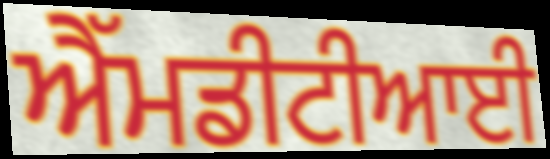
ਐੱਮਡੀਟੀਆਈ